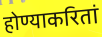
होण्याकरितां